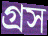
গ্রস